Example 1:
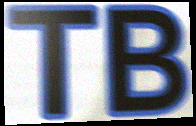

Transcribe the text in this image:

TB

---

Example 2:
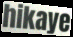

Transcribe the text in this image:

hikaye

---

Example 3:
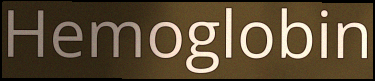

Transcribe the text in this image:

Hemoglobin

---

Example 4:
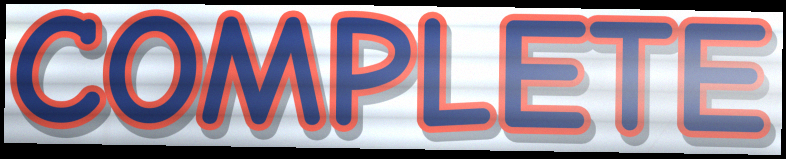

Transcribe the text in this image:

COMPLETE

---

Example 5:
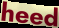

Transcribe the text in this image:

heed